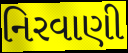
નિરવાણી